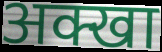
अक्खा